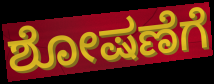
ಶೋಷಣೆಗೆ